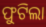
ଫୁଟିଲା